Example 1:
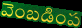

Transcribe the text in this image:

వెంబడింప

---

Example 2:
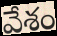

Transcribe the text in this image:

వేశం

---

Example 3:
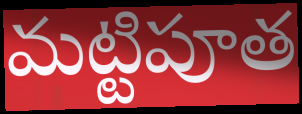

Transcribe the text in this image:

మట్టిపూత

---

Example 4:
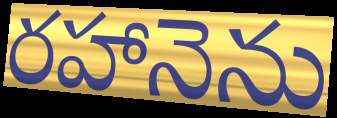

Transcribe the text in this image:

రహానెను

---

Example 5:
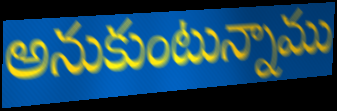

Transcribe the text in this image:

అనుకుంటున్నాము